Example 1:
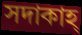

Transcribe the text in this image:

সদাকাহ্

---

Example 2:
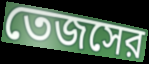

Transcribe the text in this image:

তেজসের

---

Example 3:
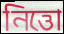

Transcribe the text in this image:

নিত্তো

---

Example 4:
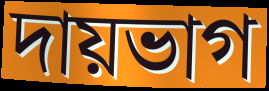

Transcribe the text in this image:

দায়ভাগ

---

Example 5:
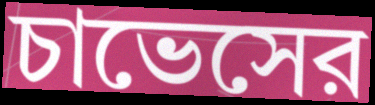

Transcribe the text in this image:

চাভেসের